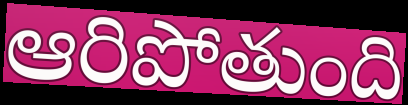
ఆరిపోతుంది